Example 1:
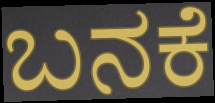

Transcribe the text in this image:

ಬನಕೆ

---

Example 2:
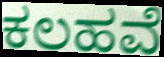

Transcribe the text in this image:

ಕಲಹವೆ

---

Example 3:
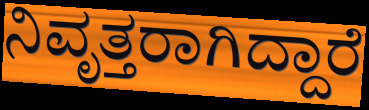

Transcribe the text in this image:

ನಿವೃತ್ತರಾಗಿದ್ದಾರೆ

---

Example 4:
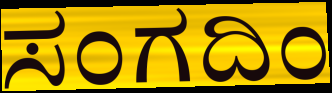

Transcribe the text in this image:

ಸಂಗದಿಂ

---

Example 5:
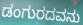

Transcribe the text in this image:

ಡಂಗುರದವನು